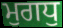
ਮੁਗਧੁ